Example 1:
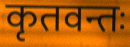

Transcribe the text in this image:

कृतवन्तः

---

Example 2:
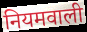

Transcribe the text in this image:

नियमवाली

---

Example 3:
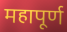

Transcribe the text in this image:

महापूर्ण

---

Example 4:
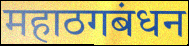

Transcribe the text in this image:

महाठगबंधन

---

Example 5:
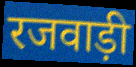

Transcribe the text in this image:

रजवाड़ी